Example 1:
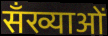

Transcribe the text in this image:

सँख्याओं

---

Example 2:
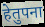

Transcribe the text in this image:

हेतुपना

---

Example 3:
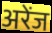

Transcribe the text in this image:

अरेंज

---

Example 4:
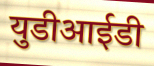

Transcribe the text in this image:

युडीआईडी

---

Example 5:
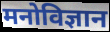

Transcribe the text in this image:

मनोविज्ञान